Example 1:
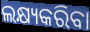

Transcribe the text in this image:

ଲକ୍ଷ୍ୟକରିବା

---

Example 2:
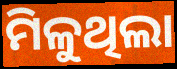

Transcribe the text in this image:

ମିଳୁଥିଲା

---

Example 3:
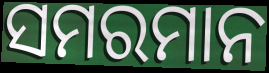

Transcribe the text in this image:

ସମରମାନ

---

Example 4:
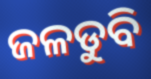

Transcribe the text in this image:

ଜଳଡୁବି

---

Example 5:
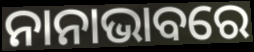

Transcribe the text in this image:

ନାନାଭାବରେ